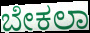
ಬೇಕಲಾ